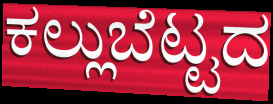
ಕಲ್ಲುಬೆಟ್ಟದ